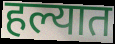
हल्यात